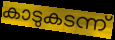
കാടുകടന്ന്